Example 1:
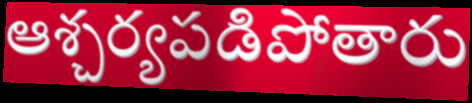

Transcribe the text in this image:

ఆశ్చర్యపడిపోతారు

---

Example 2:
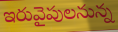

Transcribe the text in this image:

ఇరువైపులనున్న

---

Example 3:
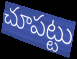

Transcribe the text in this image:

చూపట్టు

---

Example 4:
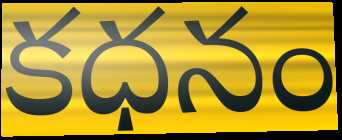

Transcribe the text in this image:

కధనం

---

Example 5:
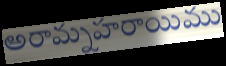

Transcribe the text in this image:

అరామ్నహరాయిము